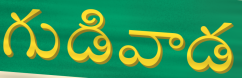
గుడివాడ